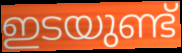
ഇടയുണ്ട്